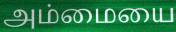
அம்மையை